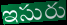
ఇసురు